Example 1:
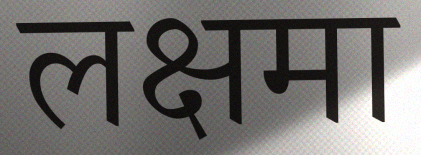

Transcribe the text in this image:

लक्षमा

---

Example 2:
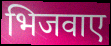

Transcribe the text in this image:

भिजवाए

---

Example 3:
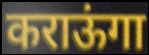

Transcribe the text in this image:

कराऊंगा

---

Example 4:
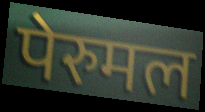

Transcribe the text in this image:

पेरुमल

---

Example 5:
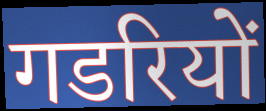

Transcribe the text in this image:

गडरियों